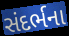
સંદર્ભના